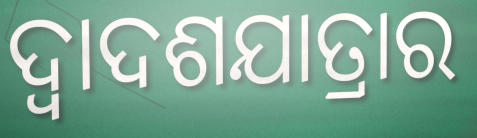
ଦ୍ୱାଦଶଯାତ୍ରାର